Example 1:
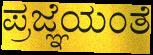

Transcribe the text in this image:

ಪ್ರಜ್ಞೆಯಂತೆ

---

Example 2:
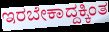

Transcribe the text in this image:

ಇರಬೇಕಾದ್ದಕ್ಕಿಂತ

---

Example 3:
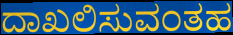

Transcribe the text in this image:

ದಾಖಲಿಸುವಂತಹ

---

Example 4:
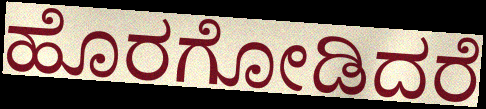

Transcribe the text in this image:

ಹೊರಗೋಡಿದರೆ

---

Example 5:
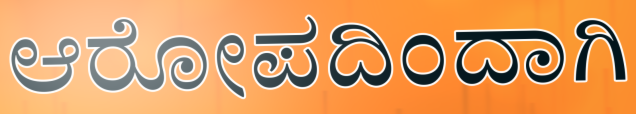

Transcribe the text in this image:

ಆರೋಪದಿಂದಾಗಿ